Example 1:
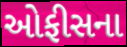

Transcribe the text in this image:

ઓફીસના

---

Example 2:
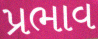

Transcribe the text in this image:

પ્રભાવ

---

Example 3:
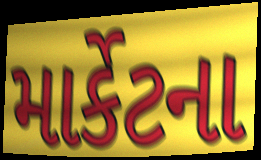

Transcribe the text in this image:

માર્કેટના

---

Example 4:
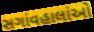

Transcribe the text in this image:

સગાંવહાલાંઓ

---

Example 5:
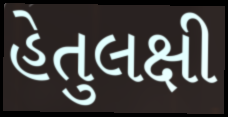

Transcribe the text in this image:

હેતુલક્ષી